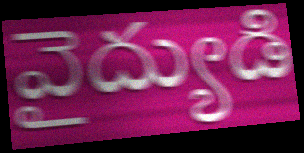
వైద్యుడి